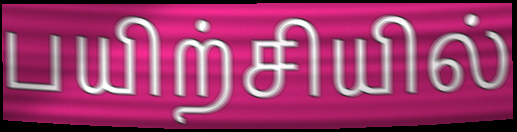
பயிற்சியில்